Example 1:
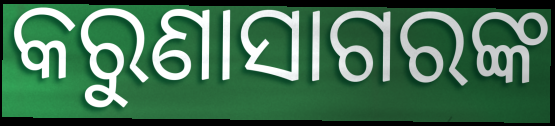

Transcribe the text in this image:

କରୁଣାସାଗରଙ୍କ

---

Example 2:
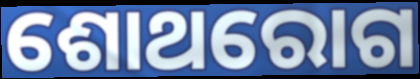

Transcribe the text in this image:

ଶୋଥରୋଗ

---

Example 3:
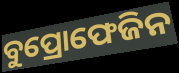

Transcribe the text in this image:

ବୁପ୍ରୋଫେଜିନ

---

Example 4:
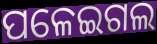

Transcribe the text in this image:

ପଳେଇଗଲ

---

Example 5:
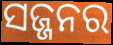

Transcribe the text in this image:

ସଜ୍ଜନର